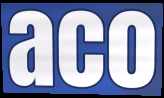
aco